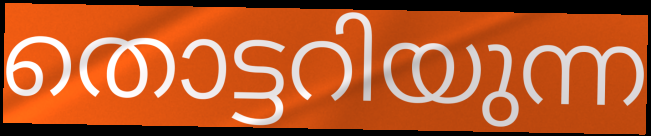
തൊട്ടറിയുന്ന